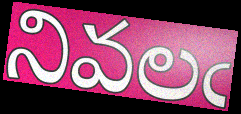
నివలఁ